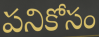
పనికోసం